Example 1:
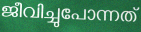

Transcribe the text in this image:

ജീവിച്ചുപോന്നത്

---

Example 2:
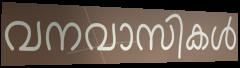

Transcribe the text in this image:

വനവാസികൾ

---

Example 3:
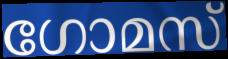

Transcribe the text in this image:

ഗോമസ്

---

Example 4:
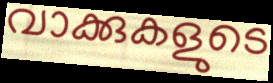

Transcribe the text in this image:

വാക്കുകളുടെ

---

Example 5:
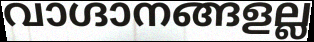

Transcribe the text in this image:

വാഗ്ദാനങ്ങളല്ല